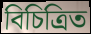
বিচিত্রিত